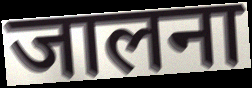
जालना